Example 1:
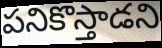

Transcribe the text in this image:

పనికొస్తాడని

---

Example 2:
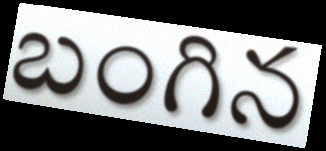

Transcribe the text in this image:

బంగిన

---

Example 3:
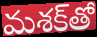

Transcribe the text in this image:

మశక్‌తో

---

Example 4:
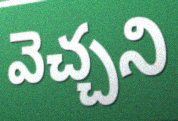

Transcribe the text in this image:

వెచ్చని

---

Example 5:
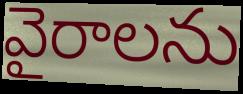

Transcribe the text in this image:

వైరాలను